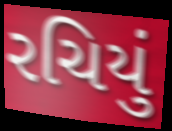
રચિયું